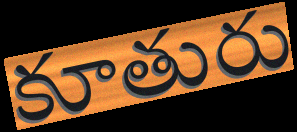
కూతురు